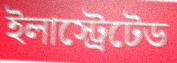
ইলাস্ট্রেটেড